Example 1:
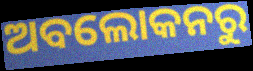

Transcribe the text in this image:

ଅବଲୋକନରୁ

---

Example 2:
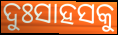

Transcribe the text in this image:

ଦୁଃସାହସକୁ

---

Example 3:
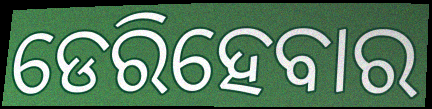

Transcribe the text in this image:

ଡେରିହେବାର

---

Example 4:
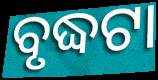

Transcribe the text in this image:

ବୃଦ୍ଧଟା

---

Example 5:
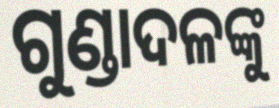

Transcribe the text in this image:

ଗୁଣ୍ଡାଦଳଙ୍କୁ